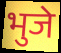
भुजे